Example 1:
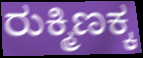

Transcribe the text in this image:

ರುಕ್ಮಿಣಕ್ಕ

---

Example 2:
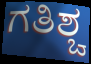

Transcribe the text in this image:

ಗತಿಶ್ಚ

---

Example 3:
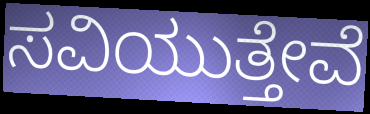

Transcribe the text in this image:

ಸವಿಯುತ್ತೇವೆ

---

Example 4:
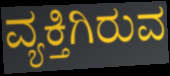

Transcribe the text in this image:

ವ್ಯಕ್ತಿಗಿರುವ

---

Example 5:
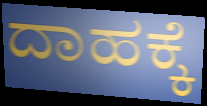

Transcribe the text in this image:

ದಾಹಕ್ಕೆ